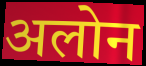
अलोन